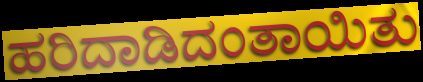
ಹರಿದಾಡಿದಂತಾಯಿತು